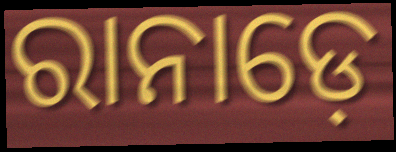
ରାନାଡ଼େ